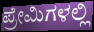
ಪ್ರೇಮಿಗಳಲ್ಲಿ